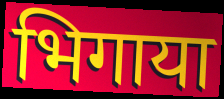
भिगाया